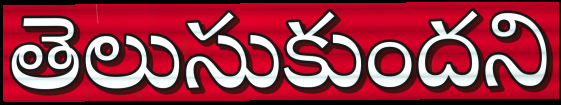
తెలుసుకుందని